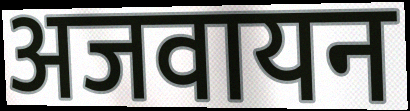
अजवायन